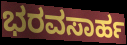
ಭರವಸಾರ್ಹ